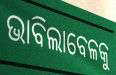
ଭାବିଲାବେଳକୁ